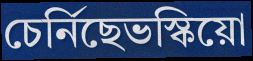
চেৰ্নিছেভস্কিয়ো